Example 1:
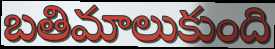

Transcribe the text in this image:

బతిమాలుకుంది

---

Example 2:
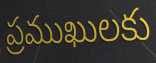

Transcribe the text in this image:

ప్రముఖులకు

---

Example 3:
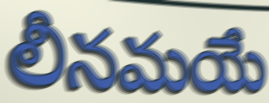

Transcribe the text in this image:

లీనమయే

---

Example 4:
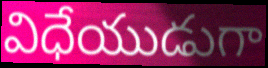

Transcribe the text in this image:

విధేయుడుగా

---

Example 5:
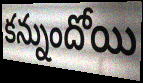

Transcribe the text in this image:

కన్నుందోయి